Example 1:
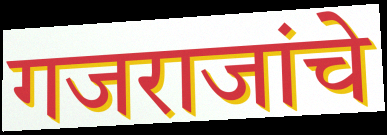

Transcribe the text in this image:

गजराजांचे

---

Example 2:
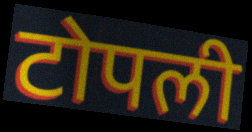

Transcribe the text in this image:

टोपली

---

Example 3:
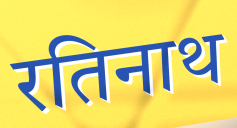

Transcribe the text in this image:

रतिनाथ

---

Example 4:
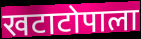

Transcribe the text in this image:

खटाटोपाला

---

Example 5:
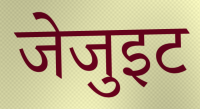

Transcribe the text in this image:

जेजुइट